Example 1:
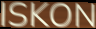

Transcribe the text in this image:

ISKON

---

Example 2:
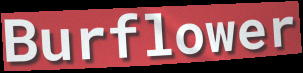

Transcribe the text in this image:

Burflower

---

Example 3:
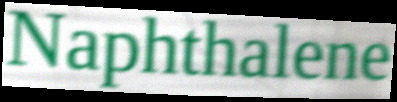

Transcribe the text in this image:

Naphthalene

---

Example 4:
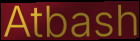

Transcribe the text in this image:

Atbash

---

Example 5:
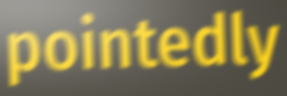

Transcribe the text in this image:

pointedly